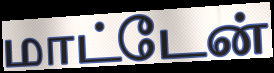
மாட்டேன்